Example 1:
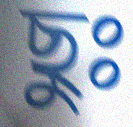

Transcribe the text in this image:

ছুঃ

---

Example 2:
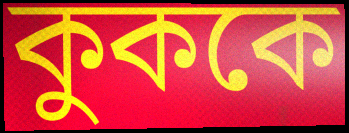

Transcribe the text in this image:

কুককে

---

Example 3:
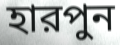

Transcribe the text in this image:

হারপুন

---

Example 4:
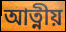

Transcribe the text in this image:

আত্নীয়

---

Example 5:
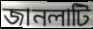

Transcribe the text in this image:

জানলাটি